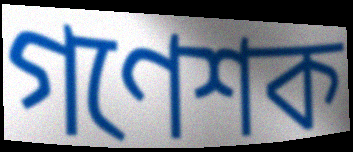
গণেশক